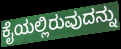
ಕೈಯಲ್ಲಿರುವುದನ್ನು